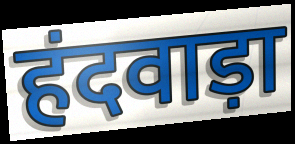
हंदवाड़ा